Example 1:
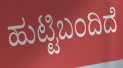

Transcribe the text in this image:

ಹುಟ್ಟಿಬಂದಿದೆ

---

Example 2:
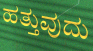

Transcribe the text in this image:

ಹತ್ತುವುದು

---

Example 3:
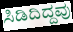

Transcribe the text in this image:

ಸಿಡಿದಿದ್ದವು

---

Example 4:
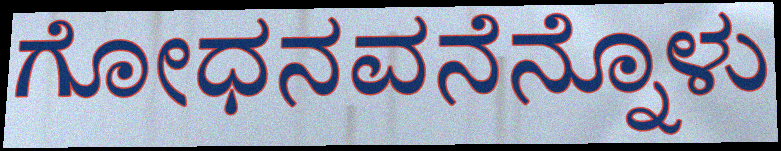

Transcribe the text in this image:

ಗೋಧನವನೆನ್ನೊಳು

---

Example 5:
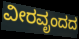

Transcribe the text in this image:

ವೀರವೃಂದದ